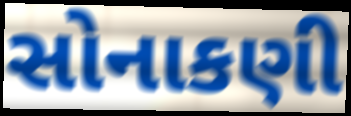
સોનાકણી